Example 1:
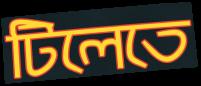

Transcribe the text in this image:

টিলেতে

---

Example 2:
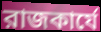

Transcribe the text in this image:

রাজকার্যে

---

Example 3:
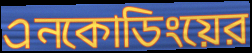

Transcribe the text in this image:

এনকোডিংয়ের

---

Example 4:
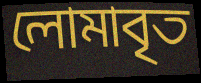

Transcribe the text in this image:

লোমাবৃত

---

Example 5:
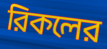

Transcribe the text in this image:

রিকলের